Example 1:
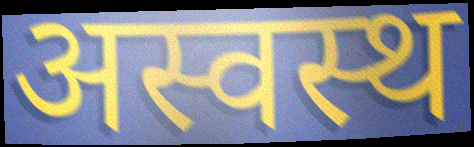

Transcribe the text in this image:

अस्वस्थ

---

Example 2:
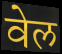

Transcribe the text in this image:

वेल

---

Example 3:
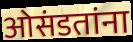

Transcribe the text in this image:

ओसंडतांना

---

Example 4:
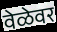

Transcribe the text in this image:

वेळेवर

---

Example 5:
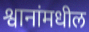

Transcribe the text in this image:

श्वानांमधील